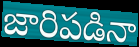
జారిపడినా